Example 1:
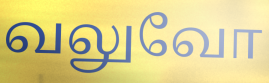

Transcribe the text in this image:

வலுவோ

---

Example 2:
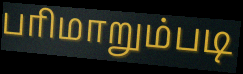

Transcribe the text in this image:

பரிமாறும்படி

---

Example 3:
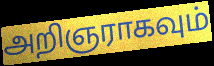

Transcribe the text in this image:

அறிஞராகவும்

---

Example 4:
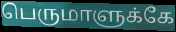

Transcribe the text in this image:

பெருமாளுக்கே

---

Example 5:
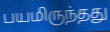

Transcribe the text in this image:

பயமிருந்தது